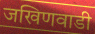
जखिणवाडी